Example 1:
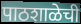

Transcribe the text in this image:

पाठशाळेची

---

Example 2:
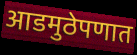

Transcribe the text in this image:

आडमुठेपणात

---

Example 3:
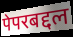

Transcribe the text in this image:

पेपरबद्दल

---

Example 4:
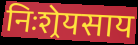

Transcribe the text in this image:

निःश्रेयसाय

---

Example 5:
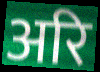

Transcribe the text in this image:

अरि